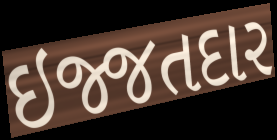
ઇજ્જતદાર